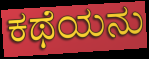
ಕಥೆಯನು